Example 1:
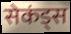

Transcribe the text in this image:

सेकंड्स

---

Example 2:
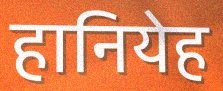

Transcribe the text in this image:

हानियेह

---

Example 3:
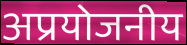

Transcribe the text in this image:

अप्रयोजनीय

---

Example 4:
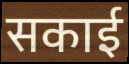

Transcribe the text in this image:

सकाई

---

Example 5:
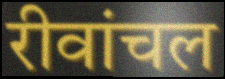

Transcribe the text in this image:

रीवांचल